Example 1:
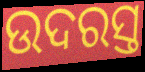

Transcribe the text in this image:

ଉଦରସ୍ତ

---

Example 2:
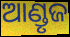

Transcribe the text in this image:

ଆଣ୍ଡୃଜ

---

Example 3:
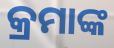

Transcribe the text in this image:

କ୍ରମାଙ୍କ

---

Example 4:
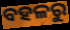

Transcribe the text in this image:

ବହଳରୁ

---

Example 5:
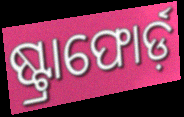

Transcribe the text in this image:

ଷ୍ଟ୍ରାଫୋର୍ଡ଼